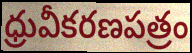
ధ్రువీకరణపత్రం